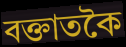
বক্তাতকৈ